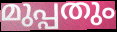
മുപ്പതും